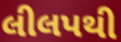
લીલપથી